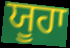
ਯੂਹਾ